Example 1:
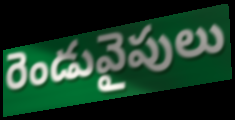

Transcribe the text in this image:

రెండువైపులు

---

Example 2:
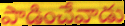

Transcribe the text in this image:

పాడించేవాడు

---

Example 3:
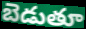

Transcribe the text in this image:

బెడుతూ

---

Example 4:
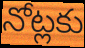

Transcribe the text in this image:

నోట్లకు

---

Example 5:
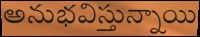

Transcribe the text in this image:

అనుభవిస్తున్నాయి